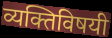
व्यक्तिविषयी